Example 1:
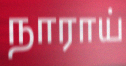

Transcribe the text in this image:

நாராய்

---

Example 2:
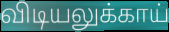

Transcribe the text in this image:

விடியலுக்காய்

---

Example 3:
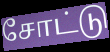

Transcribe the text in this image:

சோட்டு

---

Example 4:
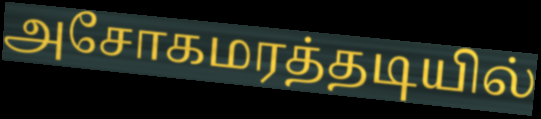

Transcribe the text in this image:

அசோகமரத்தடியில்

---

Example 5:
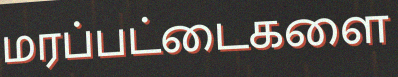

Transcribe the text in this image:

மரப்பட்டைகளை